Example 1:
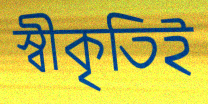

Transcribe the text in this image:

স্বীকৃতিই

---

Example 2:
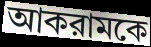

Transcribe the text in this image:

আকরামকে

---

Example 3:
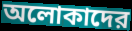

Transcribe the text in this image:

অলোকাদের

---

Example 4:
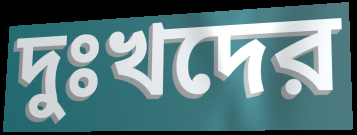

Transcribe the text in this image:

দুঃখদের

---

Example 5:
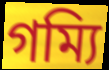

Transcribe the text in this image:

গম্যি